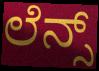
ಲೆನ್ಸ್